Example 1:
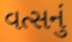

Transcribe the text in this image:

વત્સનું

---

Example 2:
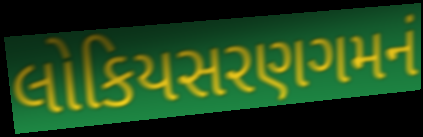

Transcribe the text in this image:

લોકિયસરણગમનં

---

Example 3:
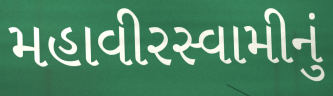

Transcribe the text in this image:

મહાવીરસ્વામીનું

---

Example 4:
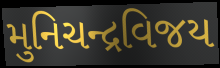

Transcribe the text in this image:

મુનિચન્દ્રવિજય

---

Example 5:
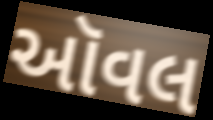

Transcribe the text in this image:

ઑવલ